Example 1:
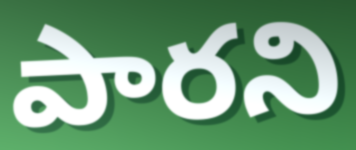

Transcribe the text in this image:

పారని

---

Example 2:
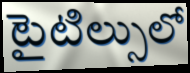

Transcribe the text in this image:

టైటిల్సులో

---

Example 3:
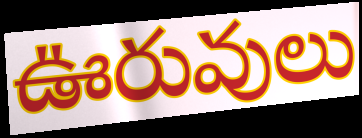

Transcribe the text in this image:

ఊరువులు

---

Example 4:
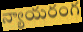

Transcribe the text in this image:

న్యాయరంగ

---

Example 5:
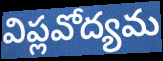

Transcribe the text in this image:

విప్లవోద్యమ